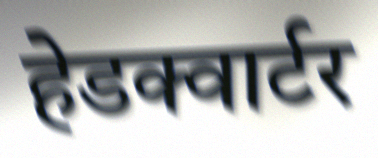
हेडक्वार्टर